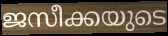
ജസീക്കയുടെ